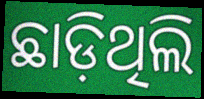
ଛାଡ଼ିଥିଲି